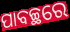
ପାବଚ୍ଛରେ